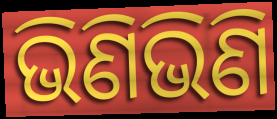
ଭିଣିଭିଣି